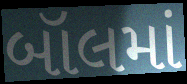
બૉલમાં